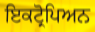
ਇਕਟ੍ਰੋਪਿਅਨ